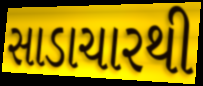
સાડાચારથી